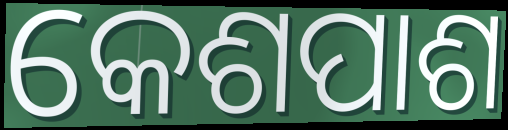
କେଶପାଶ